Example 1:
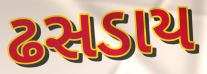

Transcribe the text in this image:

ઢસડાય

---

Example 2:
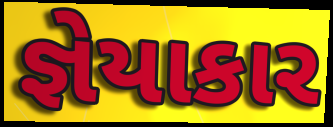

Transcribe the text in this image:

જ્ઞેયાકાર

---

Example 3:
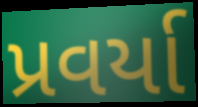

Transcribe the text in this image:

પ્રવર્યા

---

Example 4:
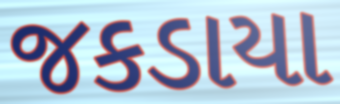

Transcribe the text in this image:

જકડાયા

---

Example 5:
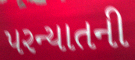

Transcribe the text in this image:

પરન્યાતની